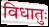
विधातुः